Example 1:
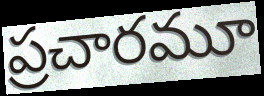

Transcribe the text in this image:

ప్రచారమూ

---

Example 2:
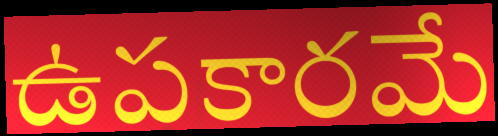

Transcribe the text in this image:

ఉపకారమే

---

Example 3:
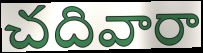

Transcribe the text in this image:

చదివారా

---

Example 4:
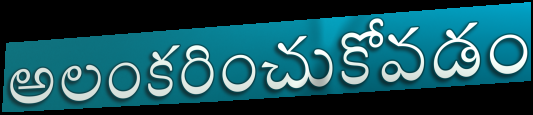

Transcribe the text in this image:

అలంకరించుకోవడం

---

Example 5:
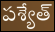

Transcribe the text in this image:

పశ్యేత్